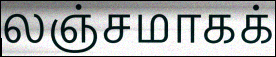
லஞ்சமாகக்